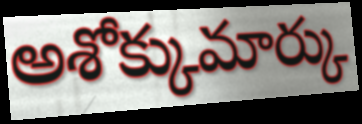
అశోక్కుమార్కు